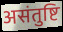
असंतुष्टि